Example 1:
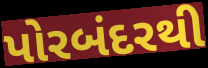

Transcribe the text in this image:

પોરબંદરથી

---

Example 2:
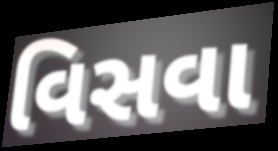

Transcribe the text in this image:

વિસવા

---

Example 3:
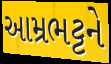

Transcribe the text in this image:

આમ્રભટ્ટને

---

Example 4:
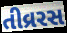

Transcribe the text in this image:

તીવ્રરસ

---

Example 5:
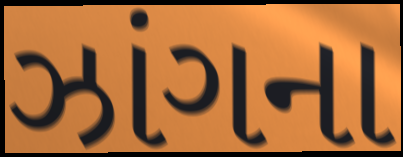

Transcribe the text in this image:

ઝાંગના